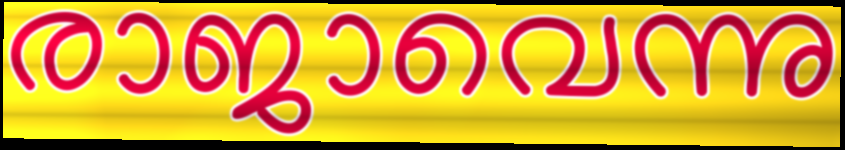
രാജാവെന്നു